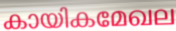
കായികമേഖല